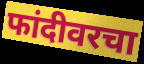
फांदीवरचा